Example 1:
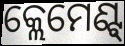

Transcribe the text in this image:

କ୍ଲେମେଣ୍ଟ୍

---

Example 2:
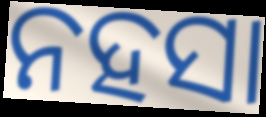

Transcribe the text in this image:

ନହସା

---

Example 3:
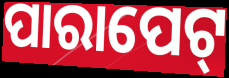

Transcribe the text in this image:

ପାରାପେଟ୍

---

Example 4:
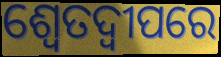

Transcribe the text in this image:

ଶ୍ୱେତଦ୍ୱୀପରେ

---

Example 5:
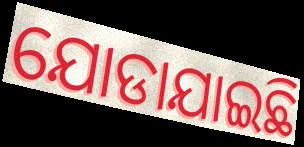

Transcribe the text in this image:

ଯୋଡାଯାଇଛି